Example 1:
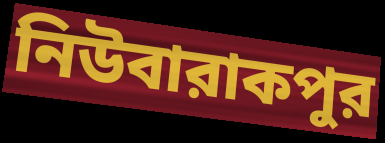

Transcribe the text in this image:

নিউবারাকপুর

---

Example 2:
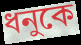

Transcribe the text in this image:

ধনুকে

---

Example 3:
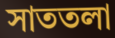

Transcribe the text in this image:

সাততলা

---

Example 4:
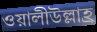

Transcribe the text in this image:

ওয়ালীউল্লাহ্র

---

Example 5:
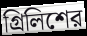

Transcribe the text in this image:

গ্রিলিশের